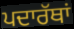
ਪਦਾਰੱਥਾਂ